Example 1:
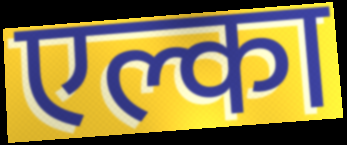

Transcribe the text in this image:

एल्का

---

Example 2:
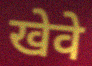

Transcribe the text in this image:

खेवे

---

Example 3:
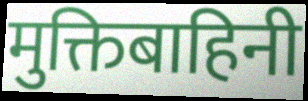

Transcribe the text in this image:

मुक्तिबाहिनी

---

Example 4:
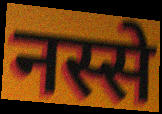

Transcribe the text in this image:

नस्से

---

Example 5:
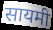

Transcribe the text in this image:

सायमी